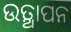
ଉତ୍ଥାପନ